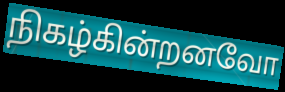
நிகழ்கின்றனவோ